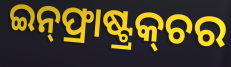
ଇନ୍‌ଫ୍ରାଷ୍ଟ୍ରକ୍‌ଚର